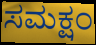
ಸಮಕ್ಷಂ